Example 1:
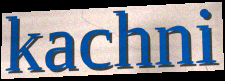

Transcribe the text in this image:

kachni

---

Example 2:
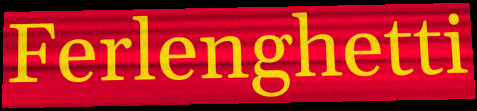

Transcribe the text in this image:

Ferlenghetti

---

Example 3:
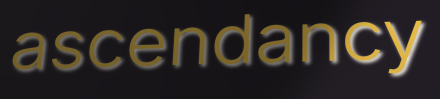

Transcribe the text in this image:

ascendancy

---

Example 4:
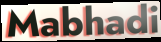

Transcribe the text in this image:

Mabhadi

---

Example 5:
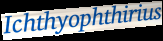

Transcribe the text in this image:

Ichthyophthirius